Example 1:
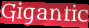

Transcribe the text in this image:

Gigantic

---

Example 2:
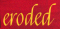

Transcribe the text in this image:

eroded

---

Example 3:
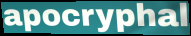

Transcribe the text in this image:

apocryphal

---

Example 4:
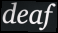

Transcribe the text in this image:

deaf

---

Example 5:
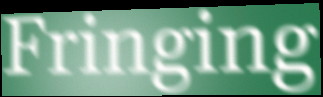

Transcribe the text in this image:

Fringing